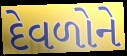
દેવળોને